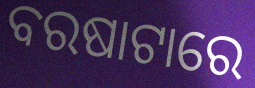
ବରଷାଟାରେ